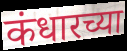
कंधारच्या